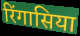
रिंगासिया